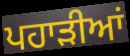
ਪਹਾਡ਼ੀਆਂ